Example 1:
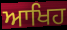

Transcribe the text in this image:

ਆਖਿਹ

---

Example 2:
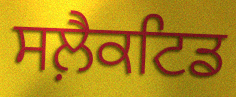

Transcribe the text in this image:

ਸਲ਼ੈਕਟਿਡ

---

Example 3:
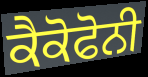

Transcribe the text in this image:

ਕੈਕੋਫੋਨੀ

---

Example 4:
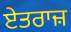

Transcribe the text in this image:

ਏਤਰਾਜ਼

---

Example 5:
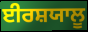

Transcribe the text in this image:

ਈਰਸ਼ਯਾਲੂ